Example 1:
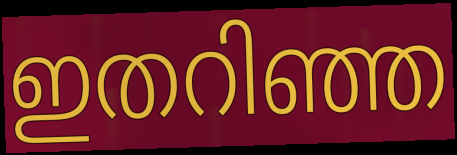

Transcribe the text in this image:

ഇതറിഞ്ഞ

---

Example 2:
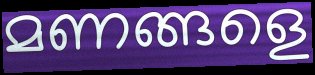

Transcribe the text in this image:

മണങ്ങളെ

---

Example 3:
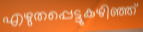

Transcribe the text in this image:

എഴുതപ്പെട്ടുകഴിഞ്ഞ്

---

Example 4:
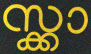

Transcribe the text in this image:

സ്ക്കാ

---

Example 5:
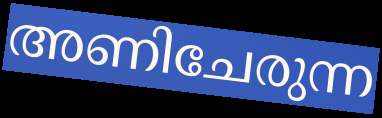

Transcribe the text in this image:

അണിചേരുന്ന